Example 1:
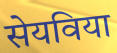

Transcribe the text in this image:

सेयविया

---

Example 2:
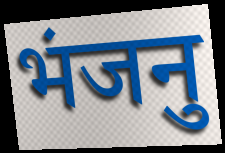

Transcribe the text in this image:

भंजनु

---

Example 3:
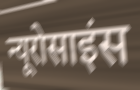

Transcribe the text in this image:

न्यूरोसाइंस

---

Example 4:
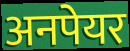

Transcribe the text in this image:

अनपेयर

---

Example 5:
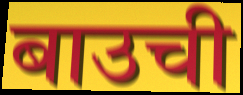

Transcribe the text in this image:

बाउची